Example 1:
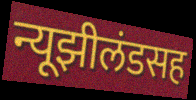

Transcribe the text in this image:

न्यूझीलंडसह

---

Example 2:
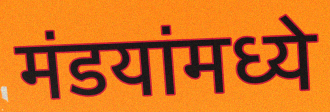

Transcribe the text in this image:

मंडयांमध्ये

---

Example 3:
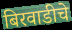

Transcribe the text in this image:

बिरवाडीचे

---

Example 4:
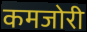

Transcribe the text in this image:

कमजोरी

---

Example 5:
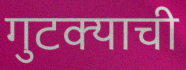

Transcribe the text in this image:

गुटक्याची